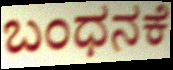
ಬಂಧನಕೆ